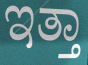
ಇತ್ತಾ